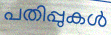
പതിപ്പുകൾ